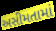
અસીમતામાં